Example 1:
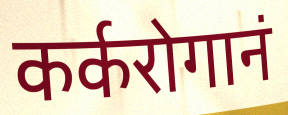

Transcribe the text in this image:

कर्करोगानं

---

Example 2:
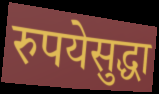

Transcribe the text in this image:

रुपयेसुद्धा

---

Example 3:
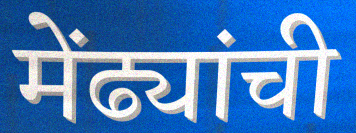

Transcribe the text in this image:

मेंढ्यांची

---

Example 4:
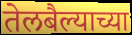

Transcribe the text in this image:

तेलबैल्याच्या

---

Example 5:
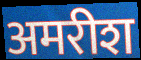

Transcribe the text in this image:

अमरीश